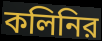
কলিনির